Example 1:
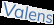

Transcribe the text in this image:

Valens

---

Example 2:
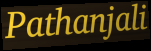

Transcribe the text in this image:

Pathanjali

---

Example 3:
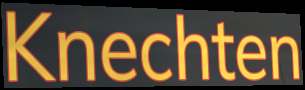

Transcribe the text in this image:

Knechten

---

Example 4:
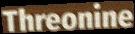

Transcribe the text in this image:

Threonine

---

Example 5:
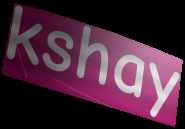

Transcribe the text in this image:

kshay